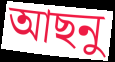
আছনু